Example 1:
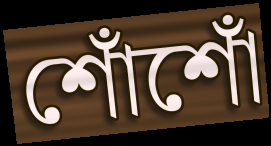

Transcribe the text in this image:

শোঁশোঁ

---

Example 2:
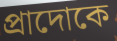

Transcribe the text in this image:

প্রাদোকে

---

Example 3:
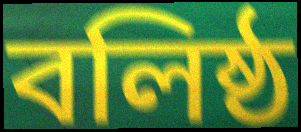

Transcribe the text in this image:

বলিষ্ঠ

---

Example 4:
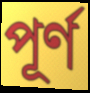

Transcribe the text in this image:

পূর্ণ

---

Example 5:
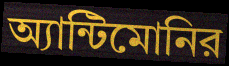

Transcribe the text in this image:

অ্যান্টিমোনির